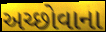
અચ્છોવાના